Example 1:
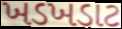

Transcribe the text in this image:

ખડખડાટ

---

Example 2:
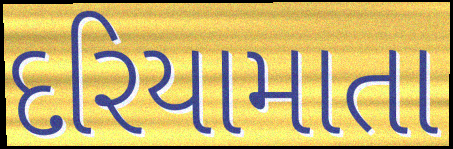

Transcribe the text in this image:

દરિયામાતા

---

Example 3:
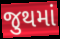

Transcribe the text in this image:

જુથમાં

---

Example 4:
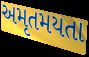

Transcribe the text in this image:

અમૃતમયતા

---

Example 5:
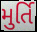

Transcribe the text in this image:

મુર્તિ